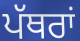
ਪੱਥਰਾਂ